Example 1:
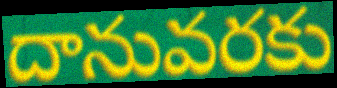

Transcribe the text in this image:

దానువరకు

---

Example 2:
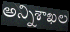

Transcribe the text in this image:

అన్నిశాఖల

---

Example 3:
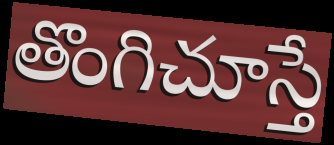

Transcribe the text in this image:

తొంగిచూస్తే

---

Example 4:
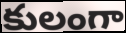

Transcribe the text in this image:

కులంగా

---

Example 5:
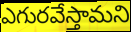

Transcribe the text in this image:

ఎగురవేస్తామని